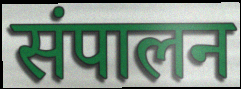
संपालन